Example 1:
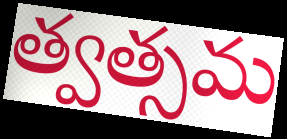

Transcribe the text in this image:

త్వత్సమ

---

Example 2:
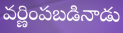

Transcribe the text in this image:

వర్ణింపబడినాడు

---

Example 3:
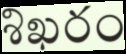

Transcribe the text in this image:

శిఖరం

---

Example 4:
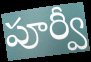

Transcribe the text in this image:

పూర్వీ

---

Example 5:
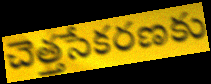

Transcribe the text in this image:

చెత్తసేకరణకు